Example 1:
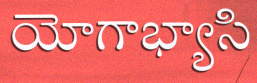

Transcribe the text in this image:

యోగాభ్యాసి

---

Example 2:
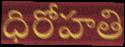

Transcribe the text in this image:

ధిరోహతి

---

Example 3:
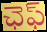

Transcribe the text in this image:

ఛెఫ్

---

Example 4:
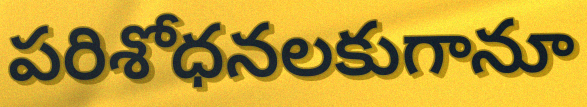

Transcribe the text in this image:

పరిశోధనలకుగానూ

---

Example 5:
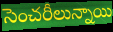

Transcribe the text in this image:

సెంచరీలున్నాయి